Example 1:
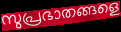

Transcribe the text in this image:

സുപ്രഭാതങ്ങളെ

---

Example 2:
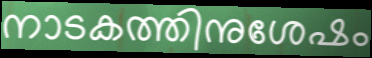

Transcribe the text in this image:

നാടകത്തിനുശേഷം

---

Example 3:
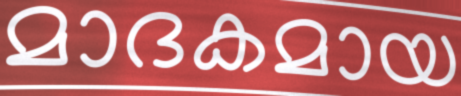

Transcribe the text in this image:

മാദകമായ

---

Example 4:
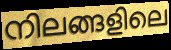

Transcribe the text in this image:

നിലങ്ങളിലെ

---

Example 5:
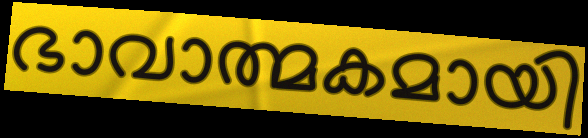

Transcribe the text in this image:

ഭാവാത്മകമായി